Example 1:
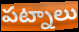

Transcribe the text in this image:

పట్నాలు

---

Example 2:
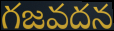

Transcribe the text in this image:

గజవదన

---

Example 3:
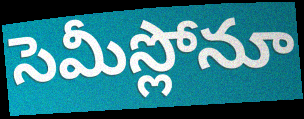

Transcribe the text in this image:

సెమీస్లోనూ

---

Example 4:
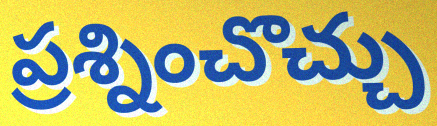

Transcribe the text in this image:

ప్రశ్నించొచ్చు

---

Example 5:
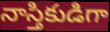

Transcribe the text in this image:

నాస్తికుడిగా